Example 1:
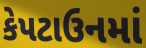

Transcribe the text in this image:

કેપટાઉનમાં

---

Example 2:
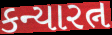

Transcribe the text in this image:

કન્યારત્ન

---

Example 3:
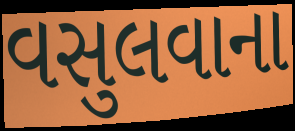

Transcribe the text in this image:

વસુલવાના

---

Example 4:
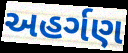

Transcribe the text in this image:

અહર્ગણ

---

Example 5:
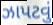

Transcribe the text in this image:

ઝાપટવું